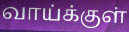
வாய்க்குள்